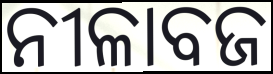
ନୀଳାବଜ